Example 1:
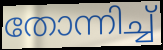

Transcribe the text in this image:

തോന്നിച്ച്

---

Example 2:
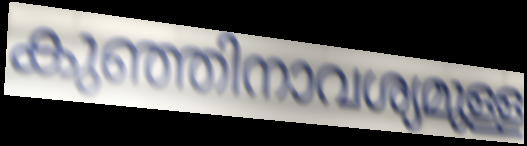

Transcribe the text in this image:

കുഞ്ഞിനാവശ്യമുള്ള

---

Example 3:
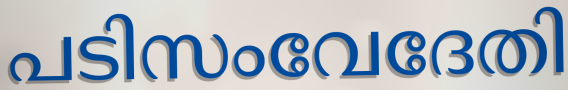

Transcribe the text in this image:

പടിസംവേദേതി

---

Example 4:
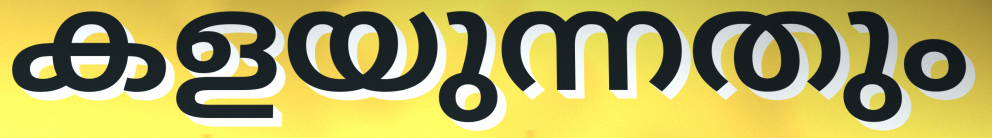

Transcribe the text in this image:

കളയുന്നതും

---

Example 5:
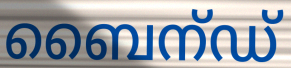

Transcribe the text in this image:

ബൈന്ഡ്